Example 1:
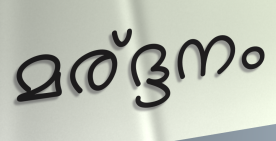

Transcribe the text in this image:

മര്ദ്ദനം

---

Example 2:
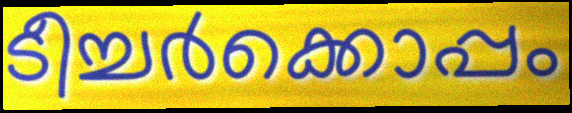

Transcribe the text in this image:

ടീച്ചർക്കൊപ്പം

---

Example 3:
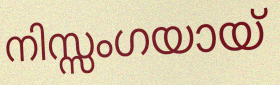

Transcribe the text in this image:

നിസ്സംഗയായ്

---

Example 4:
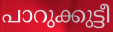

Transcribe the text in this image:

പാറുക്കുട്ടീ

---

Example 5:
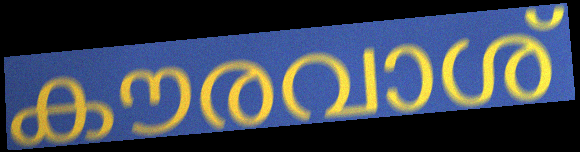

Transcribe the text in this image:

കൗരവാശ്